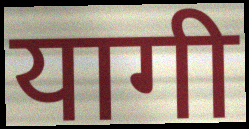
यागी